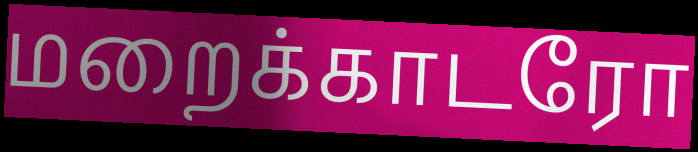
மறைக்காடரோ